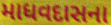
માધવદાસના